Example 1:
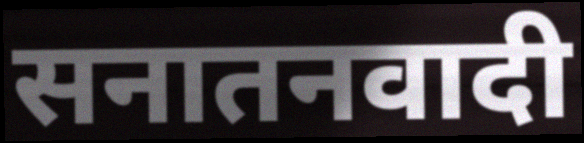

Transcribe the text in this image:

सनातनवादी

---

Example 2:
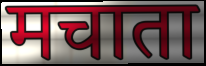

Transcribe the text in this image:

मचाता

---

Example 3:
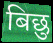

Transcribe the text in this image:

बिछु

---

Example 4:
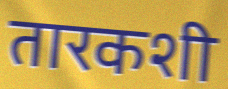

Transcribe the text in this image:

तारकशी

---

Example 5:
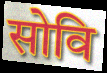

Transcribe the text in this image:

सोवि